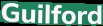
Guilford